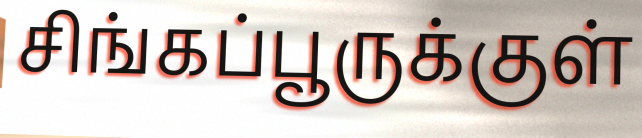
சிங்கப்பூருக்குள்